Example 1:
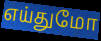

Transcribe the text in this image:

எய்துமோ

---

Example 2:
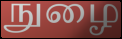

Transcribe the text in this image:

நுழை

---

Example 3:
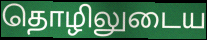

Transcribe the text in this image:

தொழிலுடைய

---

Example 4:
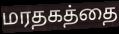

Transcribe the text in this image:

மரதகத்தை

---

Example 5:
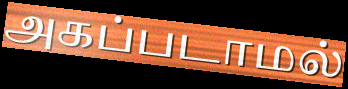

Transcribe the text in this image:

அகப்படாமல்